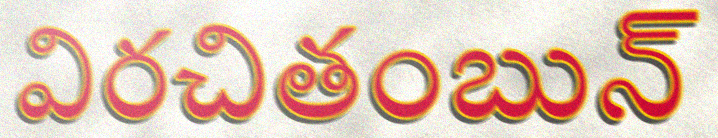
విరచితంబున్